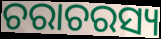
ଚରାଚରସ୍ୟ